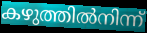
കഴുത്തിൽനിന്ന്